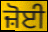
ਜ਼ੋਈ